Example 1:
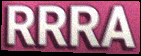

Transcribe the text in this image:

RRRA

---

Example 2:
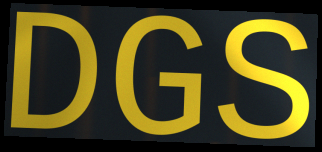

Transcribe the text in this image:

DGS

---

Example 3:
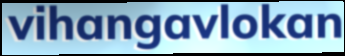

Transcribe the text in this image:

vihangavlokan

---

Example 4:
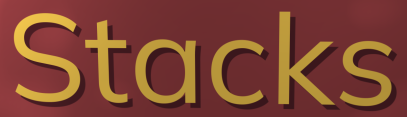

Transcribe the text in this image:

Stacks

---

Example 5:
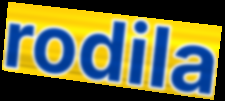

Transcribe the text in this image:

rodila